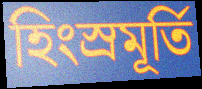
হিংস্রমূর্তি